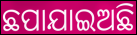
ଛପାଯାଇଅଛି